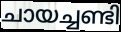
ചായച്ചണ്ടി